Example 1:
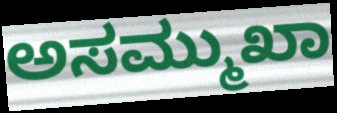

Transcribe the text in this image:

ಅಸಮ್ಮುಖಾ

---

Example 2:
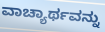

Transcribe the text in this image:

ವಾಚ್ಯಾರ್ಥವನ್ನು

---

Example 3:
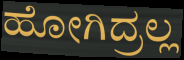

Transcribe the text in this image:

ಹೋಗಿದ್ರಲ್ಲ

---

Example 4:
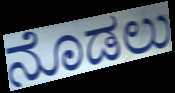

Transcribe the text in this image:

ನೊಡಲು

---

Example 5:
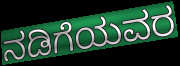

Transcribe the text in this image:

ನಡಿಗೆಯವರ